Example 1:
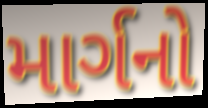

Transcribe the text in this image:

માર્ગનો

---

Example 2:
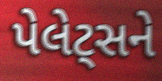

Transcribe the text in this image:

પેલેટ્સને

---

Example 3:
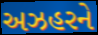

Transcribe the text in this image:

અઝહરને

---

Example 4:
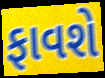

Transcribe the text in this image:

ફાવશે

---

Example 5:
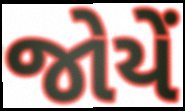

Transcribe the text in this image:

જોયેં